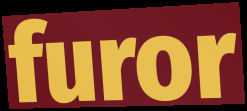
furor